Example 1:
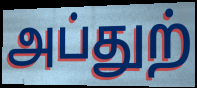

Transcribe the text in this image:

அப்துற்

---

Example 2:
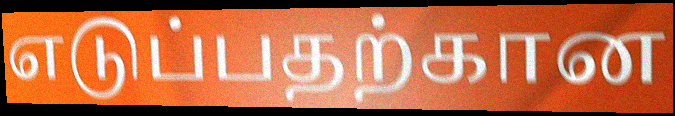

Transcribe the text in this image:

எடுப்பதற்கான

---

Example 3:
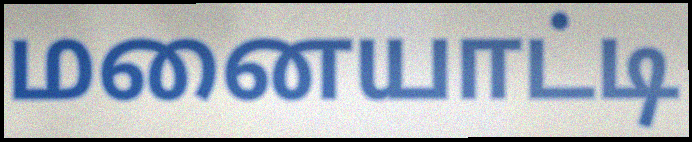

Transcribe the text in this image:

மனையாட்டி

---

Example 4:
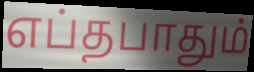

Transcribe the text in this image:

எப்தபாதும்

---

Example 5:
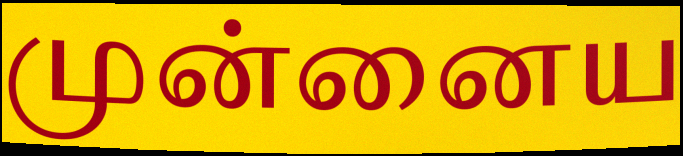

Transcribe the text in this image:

முன்னைய